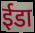
ईडा